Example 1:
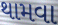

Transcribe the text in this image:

થામવા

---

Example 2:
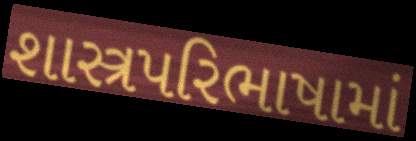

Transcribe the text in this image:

શાસ્ત્રપરિભાષામાં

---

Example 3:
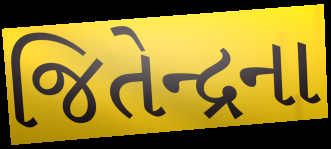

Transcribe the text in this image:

જિતેન્દ્રના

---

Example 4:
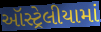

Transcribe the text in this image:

ઑસ્ટ્રેલીયામાં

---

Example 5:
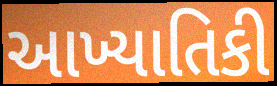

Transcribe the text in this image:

આખ્યાતિકી